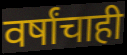
वर्षांचाही